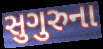
સુગુરુના